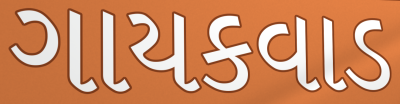
ગાયકવાડ